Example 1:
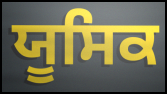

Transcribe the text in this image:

ਯੂਸਿਕ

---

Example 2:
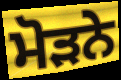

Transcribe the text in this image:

ਮੋੜਨੇ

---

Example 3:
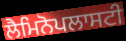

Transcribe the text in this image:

ਲੈਮਿਨੋਪਲਾਸਟੀ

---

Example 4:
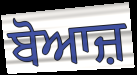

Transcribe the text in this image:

ਬੋਆਜ਼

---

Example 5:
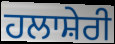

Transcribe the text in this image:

ਹਲਾਸ਼ੇਰੀ